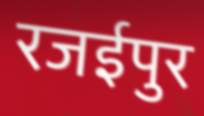
रजईपुर